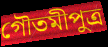
গৌতমীপুত্র